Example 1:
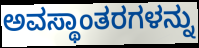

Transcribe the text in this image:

ಅವಸ್ಥಾಂತರಗಳನ್ನು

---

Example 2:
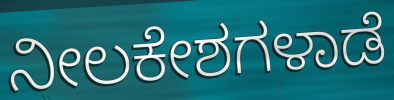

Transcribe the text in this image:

ನೀಲಕೇಶಗಳಾಡೆ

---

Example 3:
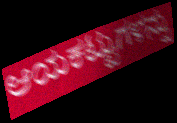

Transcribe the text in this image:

ಆಯಕಟ್ಟುಗಳನ್ನು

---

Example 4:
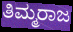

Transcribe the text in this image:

ತಿಮ್ಮರಾಜ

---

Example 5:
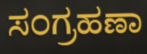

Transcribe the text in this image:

ಸಂಗ್ರಹಣಾ